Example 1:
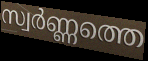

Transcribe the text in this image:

സ്വർണ്ണത്തെ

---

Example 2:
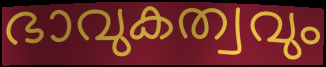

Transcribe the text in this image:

ഭാവുകത്വവും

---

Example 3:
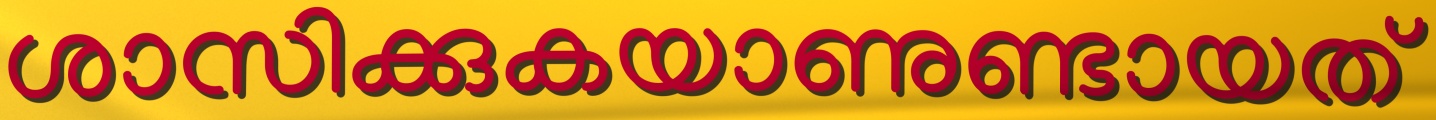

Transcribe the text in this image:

ശാസിക്കുകയാണുണ്ടായത്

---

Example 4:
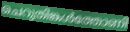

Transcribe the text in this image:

ചെറുതിങ്കൾത്തോണി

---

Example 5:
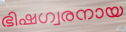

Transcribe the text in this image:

ഭിഷഗ്വരനായ